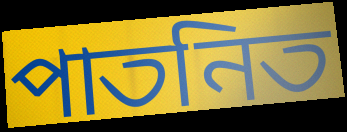
পাতনিত